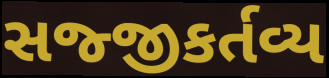
સજ્જીકર્તવ્ય